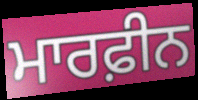
ਮਾਰਫ਼ੀਨ